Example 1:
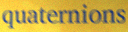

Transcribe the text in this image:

quaternions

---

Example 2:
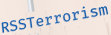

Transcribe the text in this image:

RSSTerrorism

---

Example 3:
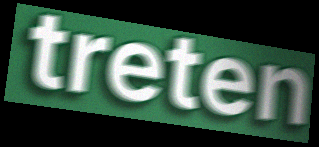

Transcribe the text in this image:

treten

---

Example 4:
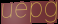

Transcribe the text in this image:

uepg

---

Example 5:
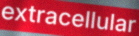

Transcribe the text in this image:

extracellular